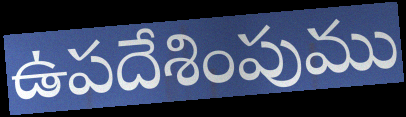
ఉపదేశింపుము